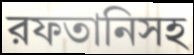
রফতানিসহ